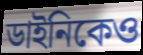
ডাইনিকেও